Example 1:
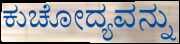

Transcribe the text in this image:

ಕುಚೋದ್ಯವನ್ನು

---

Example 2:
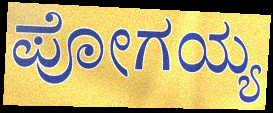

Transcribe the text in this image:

ಪೋಗಯ್ಯ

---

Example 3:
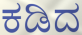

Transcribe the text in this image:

ಕಡಿದ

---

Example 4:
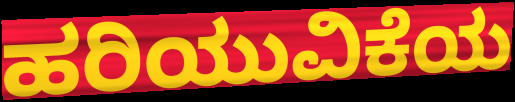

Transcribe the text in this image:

ಹರಿಯುವಿಕೆಯ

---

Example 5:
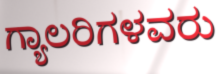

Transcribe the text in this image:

ಗ್ಯಾಲರಿಗಳವರು